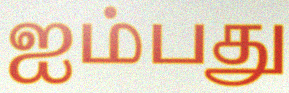
ஐம்பது